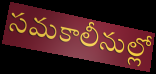
సమకాలీనుల్లో